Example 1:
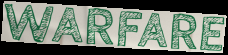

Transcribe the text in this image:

WARFARE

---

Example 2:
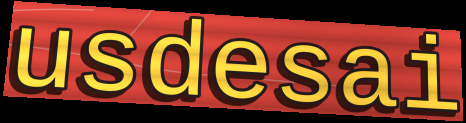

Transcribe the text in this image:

usdesai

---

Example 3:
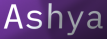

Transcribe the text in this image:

Ashya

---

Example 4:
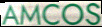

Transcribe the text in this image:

AMCOS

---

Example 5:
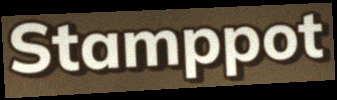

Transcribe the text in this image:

Stamppot